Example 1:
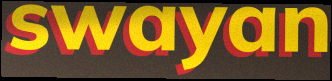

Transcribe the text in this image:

swayan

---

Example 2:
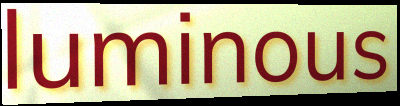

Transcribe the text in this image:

luminous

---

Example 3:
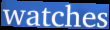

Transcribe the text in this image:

watches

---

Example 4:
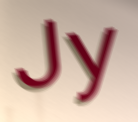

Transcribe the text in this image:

Jy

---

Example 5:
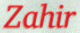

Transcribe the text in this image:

Zahir